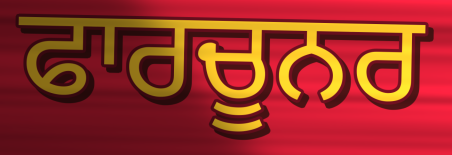
ਫਾਰਚੂਨਰ